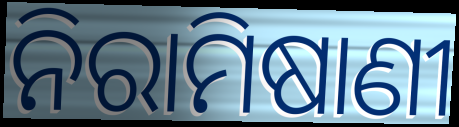
ନିରାମିଷାଣୀ